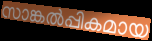
സാങ്കൽപ്പികമായ